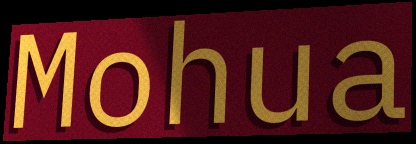
Mohua